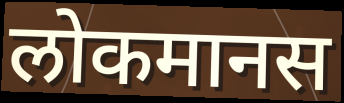
लोकमानस